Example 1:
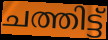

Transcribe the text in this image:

ചത്തിട്ട്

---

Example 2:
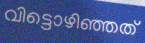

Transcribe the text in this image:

വിട്ടൊഴിഞ്ഞത്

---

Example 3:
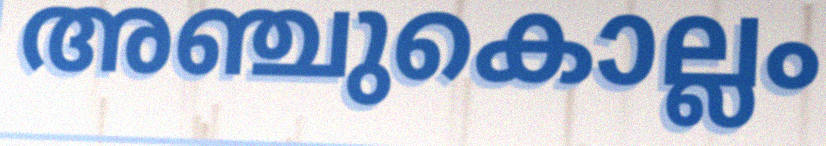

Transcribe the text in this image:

അഞ്ചുകൊല്ലം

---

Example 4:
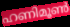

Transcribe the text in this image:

ഹണിമൂൺ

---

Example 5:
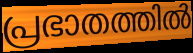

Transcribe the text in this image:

പ്രഭാതത്തിൽ